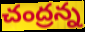
చంద్రన్న